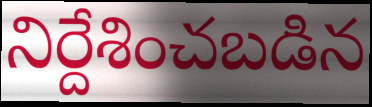
నిర్దేశించబడిన